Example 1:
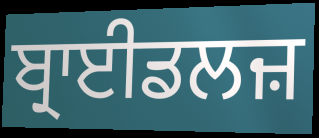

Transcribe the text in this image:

ਬ੍ਰਾਈਡਲਜ਼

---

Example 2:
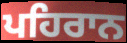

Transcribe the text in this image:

ਪਹਿਰਾਨ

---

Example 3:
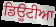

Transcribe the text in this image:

ਡਿਊਟੀਆ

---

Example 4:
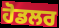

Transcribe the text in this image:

ਹੋਡਲਰ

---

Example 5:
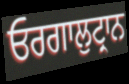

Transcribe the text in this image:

ਓਰਗਾਲੁਟ੍ਰਾਨ